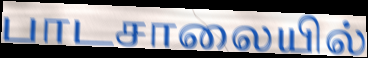
பாடசாலையில்